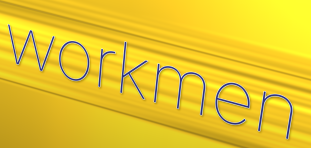
workmen